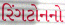
રિંગટોનનો